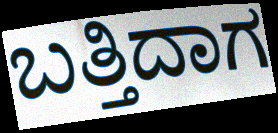
ಬತ್ತಿದಾಗ